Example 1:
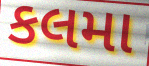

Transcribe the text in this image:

કલમા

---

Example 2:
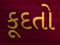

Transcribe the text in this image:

કૂદતો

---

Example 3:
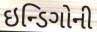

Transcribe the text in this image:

ઇન્ડિગોની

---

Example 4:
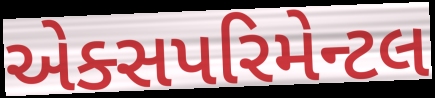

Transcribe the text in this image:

એક્સપરિમેન્ટલ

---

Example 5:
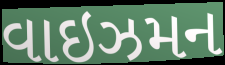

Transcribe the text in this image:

વાઇઝમન